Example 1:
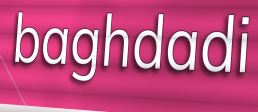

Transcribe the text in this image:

baghdadi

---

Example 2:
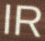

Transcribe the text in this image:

IR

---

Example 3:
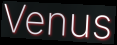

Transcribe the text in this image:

Venus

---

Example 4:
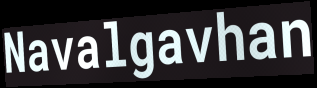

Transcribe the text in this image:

Navalgavhan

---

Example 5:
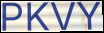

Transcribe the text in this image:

PKVY